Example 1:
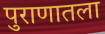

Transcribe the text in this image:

पुराणातला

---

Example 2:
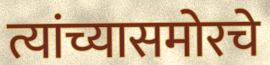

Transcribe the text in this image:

त्यांच्यासमोरचे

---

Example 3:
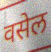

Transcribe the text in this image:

वसेल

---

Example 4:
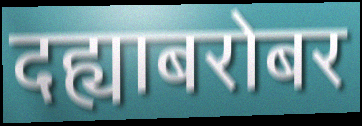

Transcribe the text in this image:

दह्याबरोबर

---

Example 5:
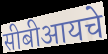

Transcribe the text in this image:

सीबीआयचे